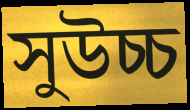
সুউচ্চ